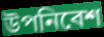
উপনিবেশ